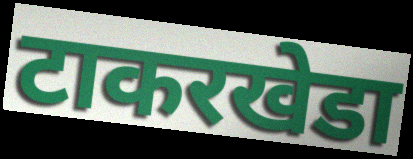
टाकरखेडा